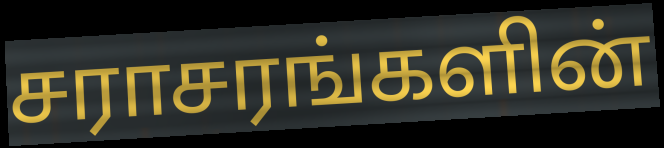
சராசரங்களின்